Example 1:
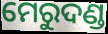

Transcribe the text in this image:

ମେରୁଦଣ୍ଡ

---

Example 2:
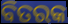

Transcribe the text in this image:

ବିତରକ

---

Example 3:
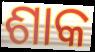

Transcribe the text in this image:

ଶାକ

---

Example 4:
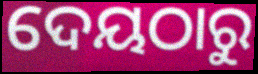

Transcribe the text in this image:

ଦେୟଠାରୁ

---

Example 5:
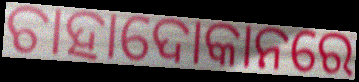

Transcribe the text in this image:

ଚାହାଦୋକାନରେ